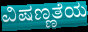
ವಿಷಣ್ಣತೆಯ